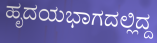
ಹೃದಯಭಾಗದಲ್ಲಿದ್ದ